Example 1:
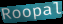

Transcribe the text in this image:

Roopal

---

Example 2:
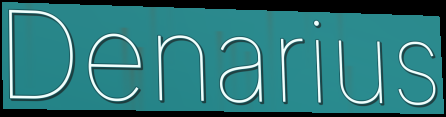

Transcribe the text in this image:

Denarius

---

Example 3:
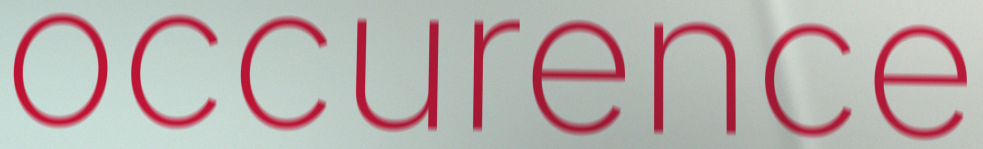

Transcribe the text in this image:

occurence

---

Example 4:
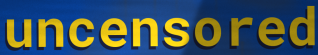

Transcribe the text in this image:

uncensored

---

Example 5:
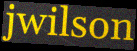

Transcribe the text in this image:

jwilson